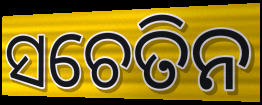
ସଚେତିନ